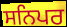
ਸਨਿਪਰ